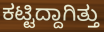
ಕಟ್ಟಿದ್ದಾಗಿತ್ತು